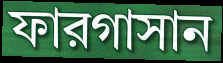
ফারগাসান